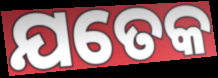
ଯତେକ